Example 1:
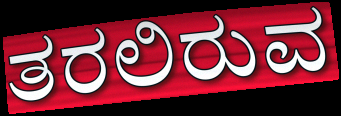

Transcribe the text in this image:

ತರಲಿರುವ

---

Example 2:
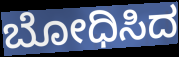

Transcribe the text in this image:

ಬೋಧಿಸಿದ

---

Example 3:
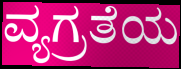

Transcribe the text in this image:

ವ್ಯಗ್ರತೆಯ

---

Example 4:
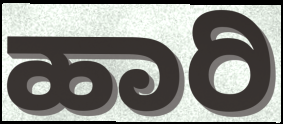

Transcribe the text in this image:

ಹಾರಿ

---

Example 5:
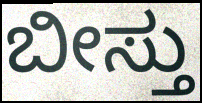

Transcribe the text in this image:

ಬೀಸ್ತು